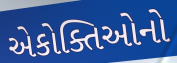
એકોક્તિઓનો